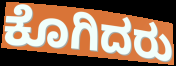
ಕೊಗಿದರು